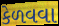
કેળવવા